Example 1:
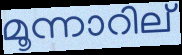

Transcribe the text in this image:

മൂന്നാറില്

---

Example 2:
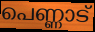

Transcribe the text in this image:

പെണ്ണാട്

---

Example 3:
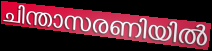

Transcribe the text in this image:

ചിന്താസരണിയിൽ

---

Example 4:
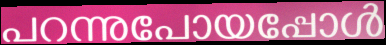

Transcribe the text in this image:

പറന്നുപോയപ്പോൾ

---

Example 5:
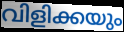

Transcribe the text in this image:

വിളിക്കയും